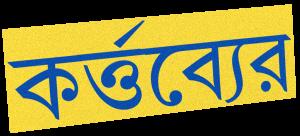
কর্ত্তব্যের